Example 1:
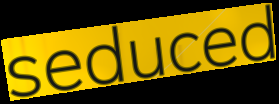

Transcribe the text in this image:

seduced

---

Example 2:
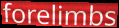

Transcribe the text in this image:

forelimbs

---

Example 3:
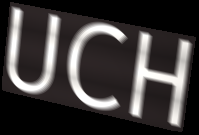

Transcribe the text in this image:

UCH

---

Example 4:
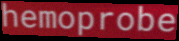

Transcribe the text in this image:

hemoprobe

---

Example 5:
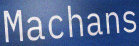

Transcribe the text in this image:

Machans